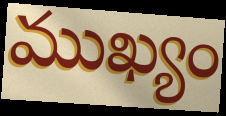
ముఖ్యం